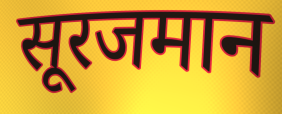
सूरजमान